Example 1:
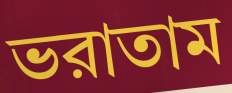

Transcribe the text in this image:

ভরাতাম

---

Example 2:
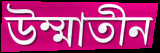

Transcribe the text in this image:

উম্মাতীন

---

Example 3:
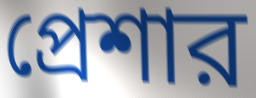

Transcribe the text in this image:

প্রেশার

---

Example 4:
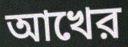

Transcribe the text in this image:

আখের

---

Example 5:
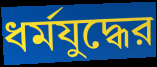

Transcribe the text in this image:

ধর্মযুদ্ধের